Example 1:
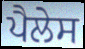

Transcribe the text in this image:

ਪੈਲੇਸ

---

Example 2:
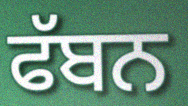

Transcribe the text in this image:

ਫੱਬਨ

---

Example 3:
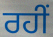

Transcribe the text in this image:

ਰਹੀਂ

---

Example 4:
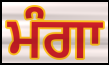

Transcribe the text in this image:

ਮੰਗਾ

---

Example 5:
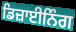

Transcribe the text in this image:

ਡਿਜ਼ਾਈਨਿੰਗ